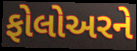
ફોલોઅરને